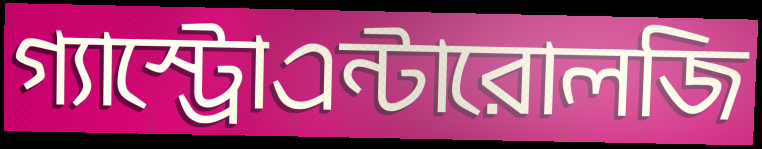
গ্যাস্ট্রোএন্টারোলজি